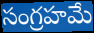
సంగ్రహమే